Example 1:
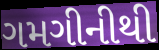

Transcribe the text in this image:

ગમગીનીથી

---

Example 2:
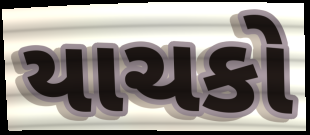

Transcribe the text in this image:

યાચકો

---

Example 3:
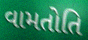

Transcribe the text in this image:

વામતોતિ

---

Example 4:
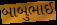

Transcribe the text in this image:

બાબુભાઈ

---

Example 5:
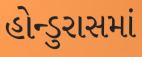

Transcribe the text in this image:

હોન્ડુરાસમાં